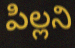
పిల్లని